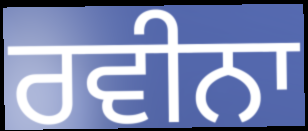
ਰਵੀਨਾ